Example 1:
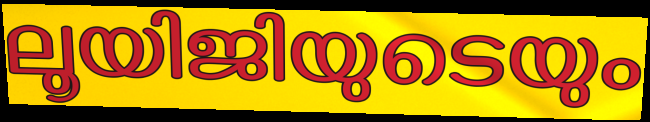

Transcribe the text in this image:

ലൂയിജിയുടെയും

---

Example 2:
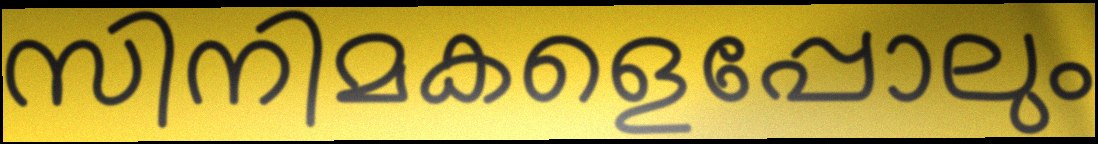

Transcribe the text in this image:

സിനിമകളെപ്പോലും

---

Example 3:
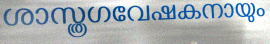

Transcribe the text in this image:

ശാസ്ത്രഗവേഷകനായും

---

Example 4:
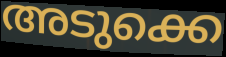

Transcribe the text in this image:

അടുക്കെ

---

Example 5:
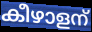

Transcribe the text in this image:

കീഴാളന്